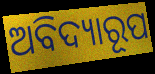
ଅବିଦ୍ୟାରୂପ